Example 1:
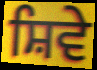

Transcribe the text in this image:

ਸ਼ਿਵੇ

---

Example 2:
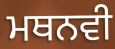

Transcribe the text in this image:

ਮਥਨਵੀ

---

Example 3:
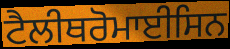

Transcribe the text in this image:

ਟੈਲੀਥਰੋਮਾਈਸਿਨ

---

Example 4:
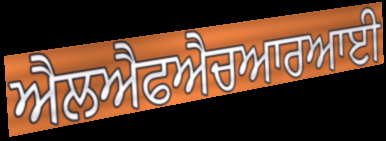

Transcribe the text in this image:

ਐਲਐਫਐਚਆਰਆਈ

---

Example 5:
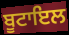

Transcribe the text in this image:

ਬੂਟਾਇਲ